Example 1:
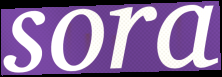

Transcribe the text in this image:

sora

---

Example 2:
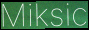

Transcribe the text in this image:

Miksic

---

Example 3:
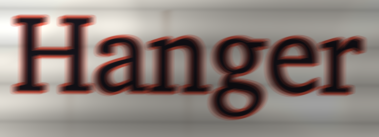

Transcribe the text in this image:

Hanger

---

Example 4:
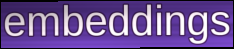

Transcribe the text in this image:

embeddings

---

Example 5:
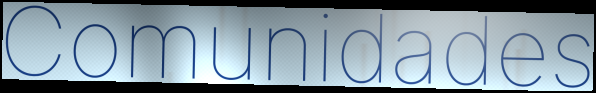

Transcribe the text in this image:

Comunidades